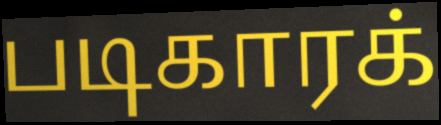
படிகாரக்